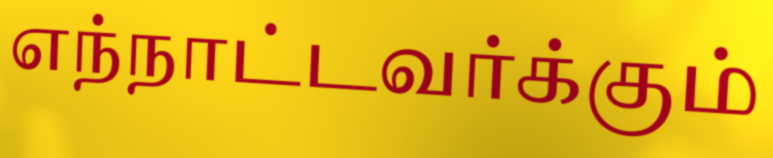
எந்நாட்டவர்க்கும்